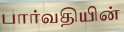
பார்வதியின்